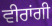
ਵੀਰਾਂਗੀ